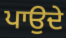
ਪਾਉਦੇ